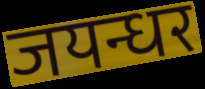
जयन्धर